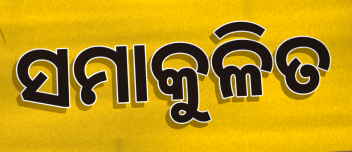
ସମାକୁଳିତ